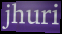
jhuri